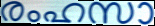
രംഹസാ